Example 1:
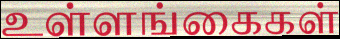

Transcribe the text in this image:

உள்ளங்கைகள்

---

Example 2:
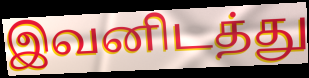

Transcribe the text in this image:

இவனிடத்து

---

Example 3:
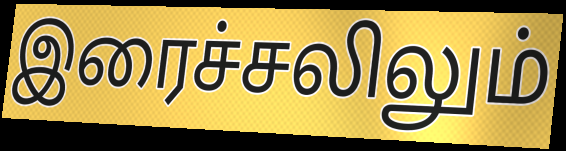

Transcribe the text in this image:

இரைச்சலிலும்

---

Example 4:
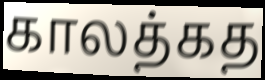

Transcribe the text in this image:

காலத்கத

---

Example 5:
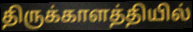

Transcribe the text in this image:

திருக்காளத்தியில்